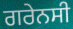
ਗਰੇਨਸੀ